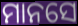
ମାନସେ